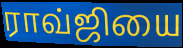
ராவ்ஜியை